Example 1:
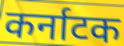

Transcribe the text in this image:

कर्नाटक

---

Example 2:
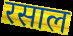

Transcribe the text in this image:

रसाल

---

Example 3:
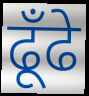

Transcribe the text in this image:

ढूँढे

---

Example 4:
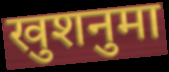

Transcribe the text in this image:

खुशनुमा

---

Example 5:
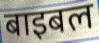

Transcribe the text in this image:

बाइबल